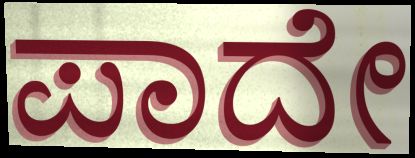
ಪಾದೇ